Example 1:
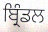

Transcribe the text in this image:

ਬ੍ਰਿੰਡਲ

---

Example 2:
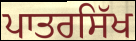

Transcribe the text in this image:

ਪਾਤਰਸਿੱਖ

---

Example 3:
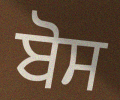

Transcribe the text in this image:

ਬੋਸ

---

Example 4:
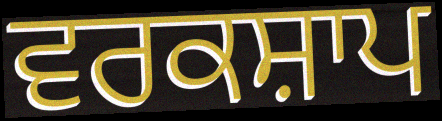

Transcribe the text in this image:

ਵਰਕਸ਼ਾਪ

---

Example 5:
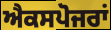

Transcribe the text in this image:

ਐਕਸਪੋਜਰਾਂ